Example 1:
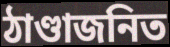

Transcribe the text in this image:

ঠাণ্ডাজনিত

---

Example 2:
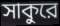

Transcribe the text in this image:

সাকুরে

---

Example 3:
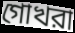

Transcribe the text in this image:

গোখরা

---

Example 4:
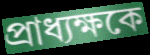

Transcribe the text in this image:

প্রাধ্যক্ষকে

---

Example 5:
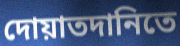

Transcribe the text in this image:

দোয়াতদানিতে